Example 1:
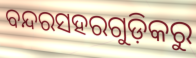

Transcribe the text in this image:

ବନ୍ଦରସହରଗୁଡ଼ିକରୁ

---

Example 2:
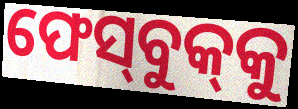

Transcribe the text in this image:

ଫେସ୍‌ବୁକ୍‌କୁ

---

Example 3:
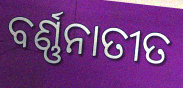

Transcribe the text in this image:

ବର୍ଣ୍ଣନାତୀତ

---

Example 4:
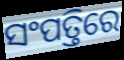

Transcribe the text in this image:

ସଂପତ୍ତିରେ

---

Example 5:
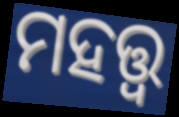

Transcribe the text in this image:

ମହତ୍ତ୍ବ